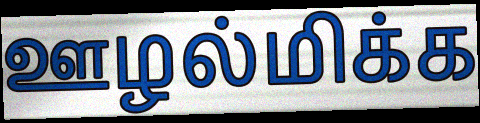
ஊழல்மிக்க